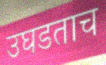
उघडताच